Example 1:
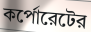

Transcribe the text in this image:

কর্পোরেটের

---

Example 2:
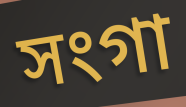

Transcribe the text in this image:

সংগা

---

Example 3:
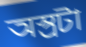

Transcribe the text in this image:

অস্ত্রটা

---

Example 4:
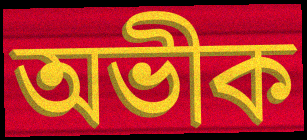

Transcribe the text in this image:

অভীক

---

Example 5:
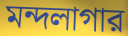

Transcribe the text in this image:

মন্দলাগার